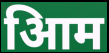
आिम